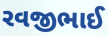
રવજીભાઈ